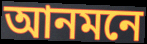
আনমনে